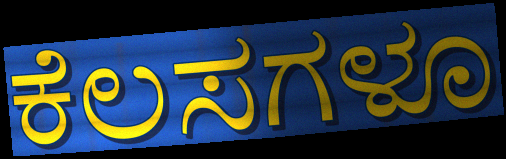
ಕೆಲಸಗಳೂ